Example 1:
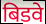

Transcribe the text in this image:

बिडवे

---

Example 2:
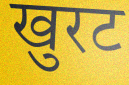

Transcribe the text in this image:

खुरट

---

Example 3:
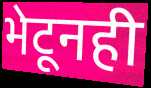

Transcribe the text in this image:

भेटूनही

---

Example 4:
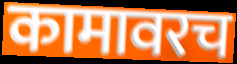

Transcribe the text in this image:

कामावरच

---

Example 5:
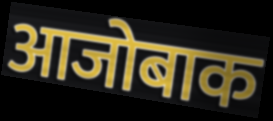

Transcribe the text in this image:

आजोबाक